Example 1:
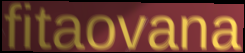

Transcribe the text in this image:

fitaovana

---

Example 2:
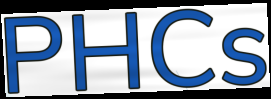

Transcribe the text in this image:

PHCs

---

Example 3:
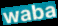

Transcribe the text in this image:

waba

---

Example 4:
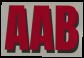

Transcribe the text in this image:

AAB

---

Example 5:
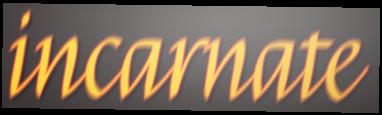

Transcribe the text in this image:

incarnate